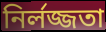
নির্লজ্জতা